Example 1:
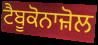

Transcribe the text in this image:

ਟੈਬੂਕੋਨਾਜ਼ੋਲ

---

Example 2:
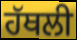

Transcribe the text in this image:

ਹੱਥਲੀ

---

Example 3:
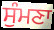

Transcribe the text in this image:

ਸੁੰਮਣਾ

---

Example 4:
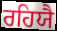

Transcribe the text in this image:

ਰਹਿਯੈ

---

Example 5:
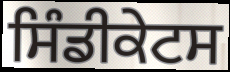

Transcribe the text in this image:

ਸਿੰਡੀਕੇਟਸ